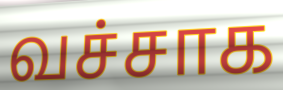
வச்சாக